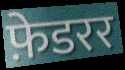
फ़ेडरर